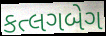
કત્લગબેગ